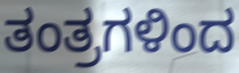
ತಂತ್ರಗಳಿಂದ